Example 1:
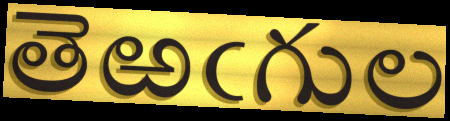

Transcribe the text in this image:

తెఱఁగుల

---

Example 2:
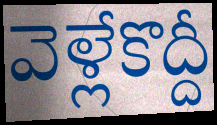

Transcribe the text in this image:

వెళ్లేకొద్దీ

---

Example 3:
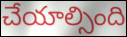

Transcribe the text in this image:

చేయాల్సింది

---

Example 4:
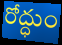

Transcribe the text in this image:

రోద్ధుం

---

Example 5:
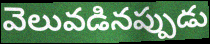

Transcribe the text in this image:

వెలువడినప్పుడు